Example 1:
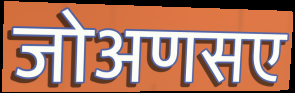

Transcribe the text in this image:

जोअणसए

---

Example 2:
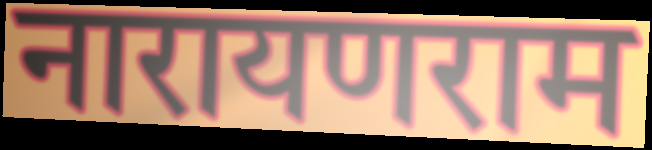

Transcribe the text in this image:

नारायणराम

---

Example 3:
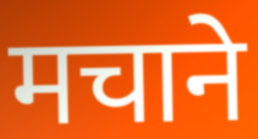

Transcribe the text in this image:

मचाने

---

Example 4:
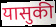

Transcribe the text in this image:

यासुकी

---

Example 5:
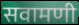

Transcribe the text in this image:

सवामणी